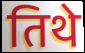
तिथे